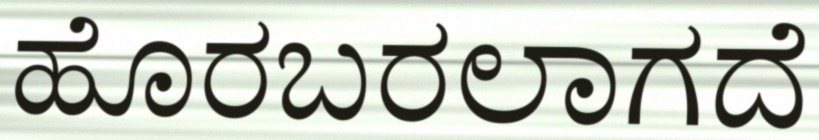
ಹೊರಬರಲಾಗದೆ